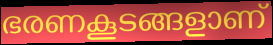
ഭരണകൂടങ്ങളാണ്